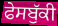
ਫੇਸਬੁੱਕੀ